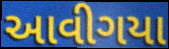
આવીગયા